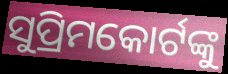
ସୁପ୍ରିମକୋର୍ଟଙ୍କୁ